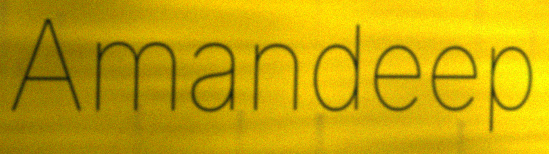
Amandeep